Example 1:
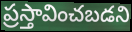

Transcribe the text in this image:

ప్రస్తావించబడని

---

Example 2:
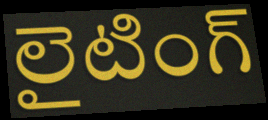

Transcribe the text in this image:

లైటింగ్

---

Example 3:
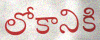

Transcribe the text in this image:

లోకానికి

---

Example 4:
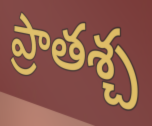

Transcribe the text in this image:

ప్రాతశ్చ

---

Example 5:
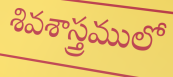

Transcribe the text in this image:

శివశాస్త్రములో